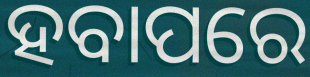
ହବାପରେ